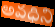
అవధిని